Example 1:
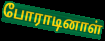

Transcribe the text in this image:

போராடினாள்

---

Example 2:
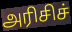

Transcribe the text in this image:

அரிசிச்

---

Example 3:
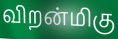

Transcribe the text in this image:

விறன்மிகு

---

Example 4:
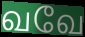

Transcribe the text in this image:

வவே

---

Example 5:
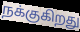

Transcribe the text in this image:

நக்குகிறது